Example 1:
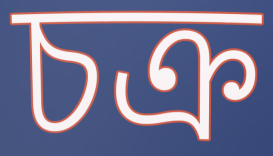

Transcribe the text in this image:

চক্র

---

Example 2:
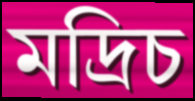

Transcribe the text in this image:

মদ্রিচ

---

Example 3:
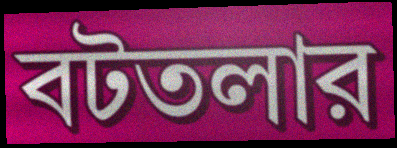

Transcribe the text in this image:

বটতলার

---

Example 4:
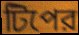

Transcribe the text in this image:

টিপের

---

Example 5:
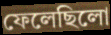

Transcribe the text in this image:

ফেলেছিলো